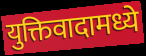
युक्तिवादामध्ये